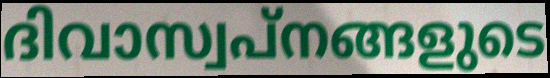
ദിവാസ്വപ്നങ്ങളുടെ